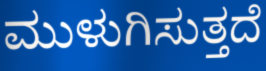
ಮುಳುಗಿಸುತ್ತದೆ